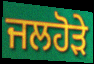
ਜਲਹੋੜੇ